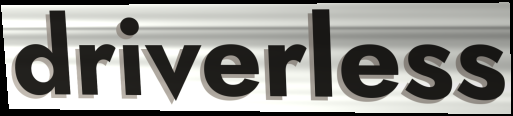
driverless